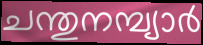
ചന്തുനമ്പ്യാർ